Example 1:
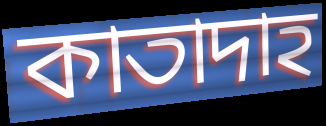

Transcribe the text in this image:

কাতাদাহ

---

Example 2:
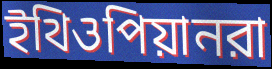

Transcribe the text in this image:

ইথিওপিয়ানরা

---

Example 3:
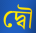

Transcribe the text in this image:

দ্বৌ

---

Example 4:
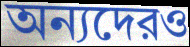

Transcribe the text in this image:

অন্যদেরও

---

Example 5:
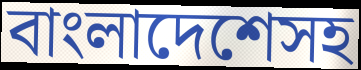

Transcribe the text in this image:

বাংলাদেশেসহ